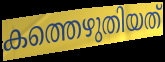
കത്തെഴുതിയത്